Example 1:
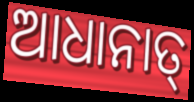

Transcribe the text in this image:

ଆଧାନାତ୍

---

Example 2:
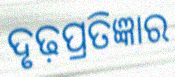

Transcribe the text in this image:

ଦୃଢ଼ପ୍ରତିଜ୍ଞାର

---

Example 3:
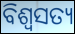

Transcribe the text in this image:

ବିଶ୍ୱସତ୍ୟ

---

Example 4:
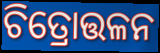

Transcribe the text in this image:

ଚିତ୍ରୋତ୍ତଳନ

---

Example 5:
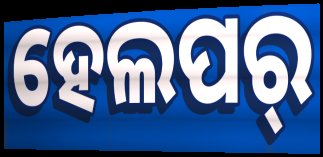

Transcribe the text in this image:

ହେଲପର୍